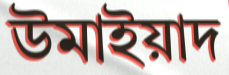
উমাইয়াদ